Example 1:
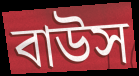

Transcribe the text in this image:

বাউস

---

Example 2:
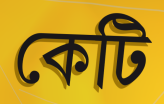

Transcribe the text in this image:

কেটি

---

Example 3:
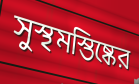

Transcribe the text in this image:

সুস্থমস্তিষ্কের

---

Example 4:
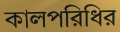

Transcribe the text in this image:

কালপরিধির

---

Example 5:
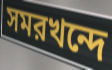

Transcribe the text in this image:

সমরখন্দে